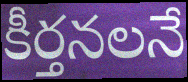
కీర్తనలనే